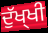
ਦੁੱਖ੍ਖੀ